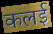
कलई